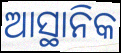
ଆସ୍ଥାନିକ